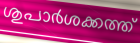
ശുപാർശക്കത്ത്